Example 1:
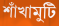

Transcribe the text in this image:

শাঁখামুটি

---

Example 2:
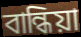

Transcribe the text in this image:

বান্ধিয়া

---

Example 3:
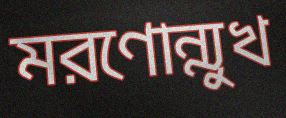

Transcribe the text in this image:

মরণোন্মুখ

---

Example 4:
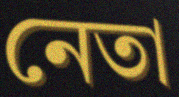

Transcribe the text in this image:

নেতা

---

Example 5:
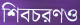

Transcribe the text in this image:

শিবচরণও